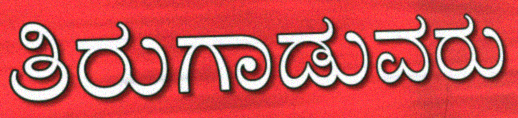
ತಿರುಗಾಡುವರು